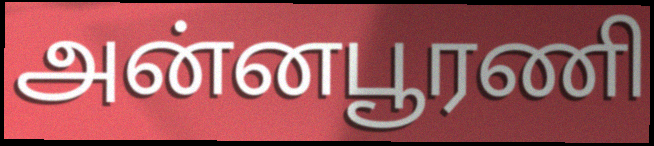
அன்னபூரணி